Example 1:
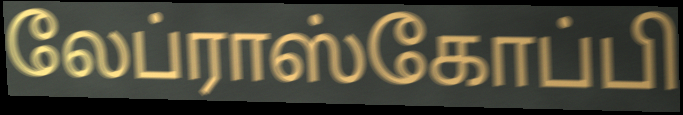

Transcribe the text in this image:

லேப்ராஸ்கோப்பி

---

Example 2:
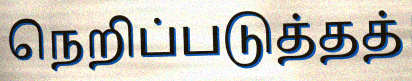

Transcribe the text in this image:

நெறிப்படுத்தத்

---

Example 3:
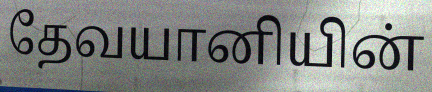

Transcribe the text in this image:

தேவயானியின்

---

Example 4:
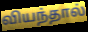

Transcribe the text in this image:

வியந்தால்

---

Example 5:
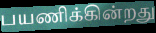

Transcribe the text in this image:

பயணிக்கின்றது